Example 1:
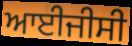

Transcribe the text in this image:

ਆਈਜੀਸੀ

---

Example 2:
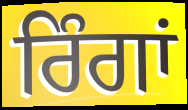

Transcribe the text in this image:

ਰਿੰਗਾਂ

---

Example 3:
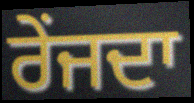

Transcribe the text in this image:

ਰੇਂਜਦਾ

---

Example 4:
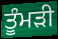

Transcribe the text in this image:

ਤੂੰਮੜੀ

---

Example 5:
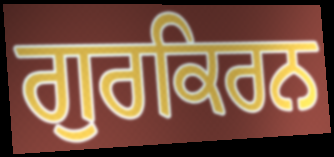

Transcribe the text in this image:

ਗੁਰਕਿਰਨ